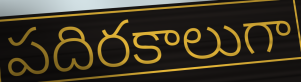
పదిరకాలుగా